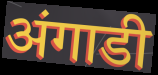
अंगाडी